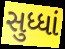
સુધ્ધાં